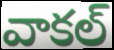
వాకల్